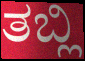
ತಬ್ಲಿ